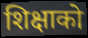
शिक्षाको